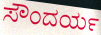
ಸೌಂದರ್ಯ